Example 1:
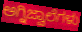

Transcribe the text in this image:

ಅಗ್ನಿಜ್ವಾಲೆಗಳು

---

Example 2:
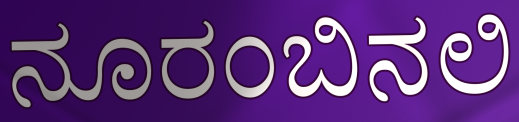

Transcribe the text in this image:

ನೂರಂಬಿನಲಿ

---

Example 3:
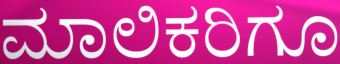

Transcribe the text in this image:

ಮಾಲಿಕರಿಗೂ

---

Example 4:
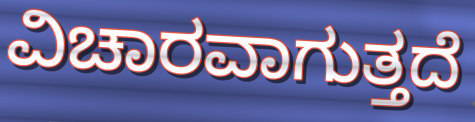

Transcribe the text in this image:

ವಿಚಾರವಾಗುತ್ತದೆ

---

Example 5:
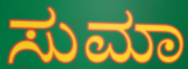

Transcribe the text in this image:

ಸುಮಾ